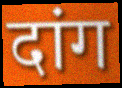
दांग